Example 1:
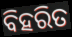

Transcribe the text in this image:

ବିହରିତ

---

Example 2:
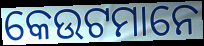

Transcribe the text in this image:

କେଉଟମାନେ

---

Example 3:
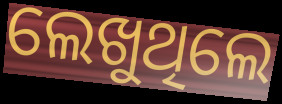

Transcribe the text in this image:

ଲେଖୁଥିଲେ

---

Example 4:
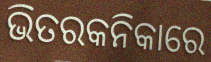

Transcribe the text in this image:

ଭିତରକନିକାରେ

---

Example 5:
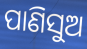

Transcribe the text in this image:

ପାଣିସୁଅ